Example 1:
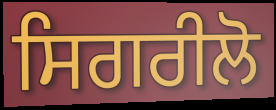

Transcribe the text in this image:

ਸਿਗਰੀਲੋ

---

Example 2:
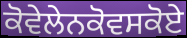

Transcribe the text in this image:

ਕੋਵੇਲੇਨਕੋਵਸਕੋਏ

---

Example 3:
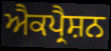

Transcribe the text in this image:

ਐਕਪ੍ਰੈਸ਼ਨ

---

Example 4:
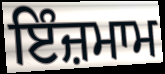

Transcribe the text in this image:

ਇੰਜ਼ਮਾਮ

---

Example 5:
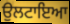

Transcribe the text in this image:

ਉਲਟਾਇਆ